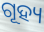
ଗୂହ୍ୟ